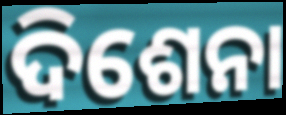
ଦିଶେନା